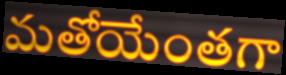
మతోయేంతగా